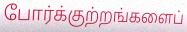
போர்க்குற்றங்களைப்